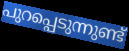
പുറപ്പെടുന്നുണ്ട്